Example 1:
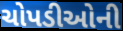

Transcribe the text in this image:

ચોપડીઓની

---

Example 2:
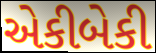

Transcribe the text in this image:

એકીબેકી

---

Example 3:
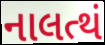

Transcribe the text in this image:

નાલત્થં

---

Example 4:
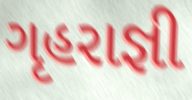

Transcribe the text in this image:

ગૃહરાજ્ઞી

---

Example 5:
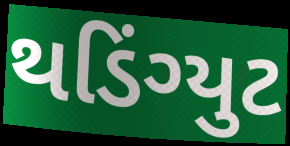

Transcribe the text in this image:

થડિંગ્યુટ